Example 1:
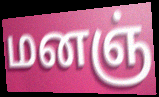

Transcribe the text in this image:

மனஞ்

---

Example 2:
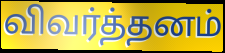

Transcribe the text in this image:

விவர்த்தனம்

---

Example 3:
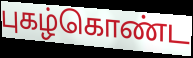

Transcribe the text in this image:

புகழ்கொண்ட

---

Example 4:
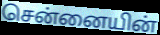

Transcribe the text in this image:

சென்னையின்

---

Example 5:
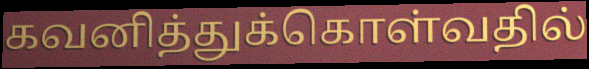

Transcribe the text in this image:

கவனித்துக்கொள்வதில்